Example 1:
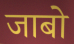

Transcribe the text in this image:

जाबो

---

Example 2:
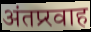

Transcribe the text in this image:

अंतप्र्रवाह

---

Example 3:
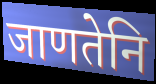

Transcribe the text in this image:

जाणतेनि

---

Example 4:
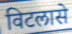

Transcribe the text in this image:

विटलासे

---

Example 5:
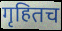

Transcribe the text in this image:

गृहितच